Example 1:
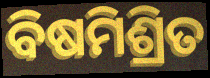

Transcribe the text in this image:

ବିଷମିଶ୍ରିତ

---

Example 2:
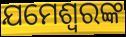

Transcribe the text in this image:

ଯମେଶ୍ୱରଙ୍କ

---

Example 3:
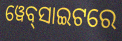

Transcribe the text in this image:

ୱେବ୍‍ସାଇଟରେ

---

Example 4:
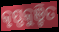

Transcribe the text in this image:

କୃଷ୍ଣକୁଞ୍ଚିତ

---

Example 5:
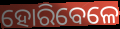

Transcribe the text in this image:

ହୋରିବେଳେ